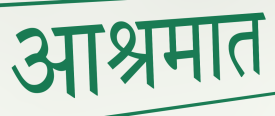
आश्रमात